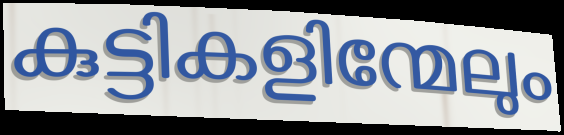
കുട്ടികളിന്മേലും